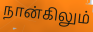
நான்கிலும்